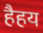
हैहय